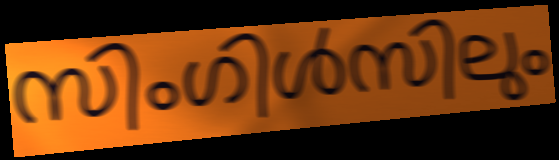
സിംഗിൾസിലും